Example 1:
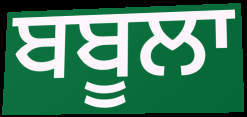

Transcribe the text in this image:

ਬਬੂਲਾ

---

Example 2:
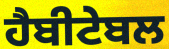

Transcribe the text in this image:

ਹੈਬੀਟੇਬਲ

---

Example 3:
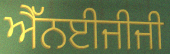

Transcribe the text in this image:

ਐੱਨਈਜੀਜੀ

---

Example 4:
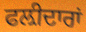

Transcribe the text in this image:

ਫਲ਼ੀਦਾਰਾਂ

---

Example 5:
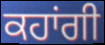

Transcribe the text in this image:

ਕਹਾਂਗੀ